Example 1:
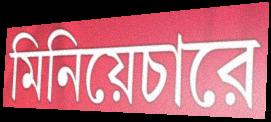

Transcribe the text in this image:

মিনিয়েচারে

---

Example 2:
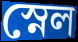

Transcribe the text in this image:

স্নেল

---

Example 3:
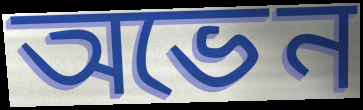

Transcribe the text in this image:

অভেন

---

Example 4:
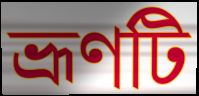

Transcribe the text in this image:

ভ্রূণটি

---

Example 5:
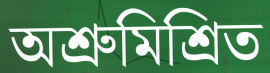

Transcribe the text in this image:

অশ্রুমিশ্রিত